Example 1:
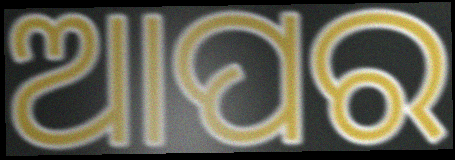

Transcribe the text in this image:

ଆପର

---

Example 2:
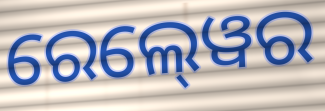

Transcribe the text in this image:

ରେଲ୍‍ୱେର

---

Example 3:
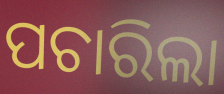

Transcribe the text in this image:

ପଚାରିଲା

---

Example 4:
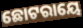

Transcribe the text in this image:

ଛୋଟରାୟେ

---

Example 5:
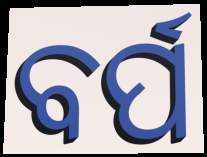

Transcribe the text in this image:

ବର୍ପ